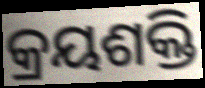
କ୍ରୟଶକ୍ତି